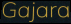
Gajara